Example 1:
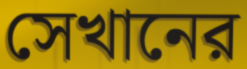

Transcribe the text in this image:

সেখানের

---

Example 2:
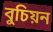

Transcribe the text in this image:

বুচিয়ন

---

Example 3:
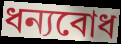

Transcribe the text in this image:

ধন্যবোধ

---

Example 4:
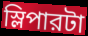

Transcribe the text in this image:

স্লিপারটা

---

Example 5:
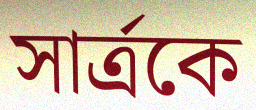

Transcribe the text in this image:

সার্ত্রকে